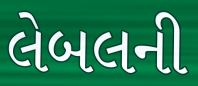
લેબલની